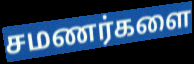
சமணர்களை